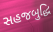
સહજબુદ્ધિ